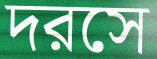
দরসে